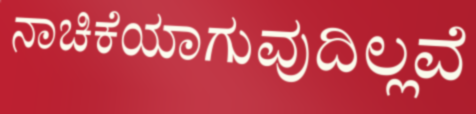
ನಾಚಿಕೆಯಾಗುವುದಿಲ್ಲವೆ